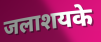
जलाशयके